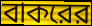
বাকরের